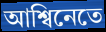
আশ্বিনেতে